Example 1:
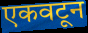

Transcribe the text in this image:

एकवटून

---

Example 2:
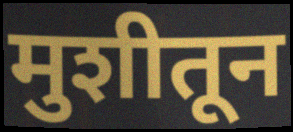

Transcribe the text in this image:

मुशीतून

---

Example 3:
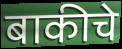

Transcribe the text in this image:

बाकीचे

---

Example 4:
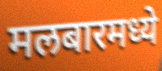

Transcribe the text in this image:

मलबारमध्ये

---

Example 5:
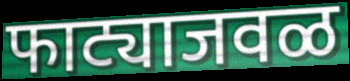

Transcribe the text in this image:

फाट्याजवळ